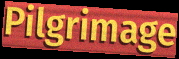
Pilgrimage